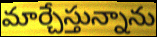
మార్చేస్తున్నాను